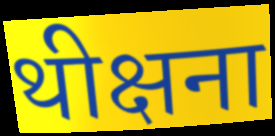
थीक्षना